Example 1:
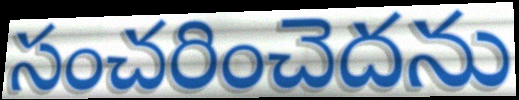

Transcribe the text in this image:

సంచరించెదను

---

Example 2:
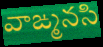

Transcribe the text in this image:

వాఙ్మనసి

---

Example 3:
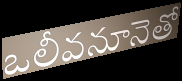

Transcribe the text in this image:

ఒలీవనూనెతో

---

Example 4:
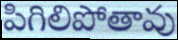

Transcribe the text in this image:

పిగిలిపోతావు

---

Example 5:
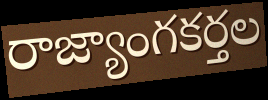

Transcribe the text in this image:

రాజ్యాంగకర్తల